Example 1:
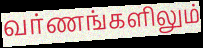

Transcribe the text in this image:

வர்ணங்களிலும்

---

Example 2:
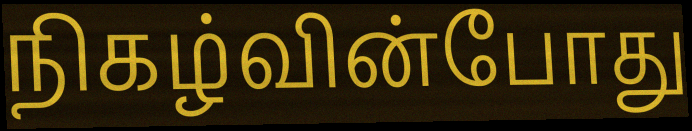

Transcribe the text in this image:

நிகழ்வின்போது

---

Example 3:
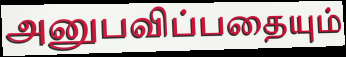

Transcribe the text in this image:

அனுபவிப்பதையும்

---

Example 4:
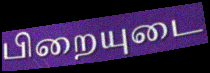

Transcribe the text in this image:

பிறையுடை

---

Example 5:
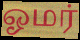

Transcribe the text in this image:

ஓமர்